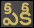
పీకీ